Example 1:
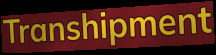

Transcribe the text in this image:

Transhipment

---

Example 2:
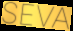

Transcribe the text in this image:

SEVA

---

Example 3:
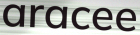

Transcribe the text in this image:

aracee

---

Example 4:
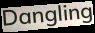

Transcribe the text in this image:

Dangling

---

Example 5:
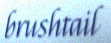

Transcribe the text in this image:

brushtail